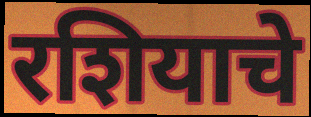
रशियाचे